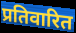
प्रतिवारित